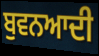
ਬੁਵਨਆਦੀ